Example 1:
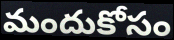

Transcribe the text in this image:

మందుకోసం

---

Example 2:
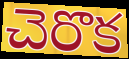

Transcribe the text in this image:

చెరొక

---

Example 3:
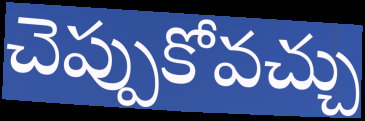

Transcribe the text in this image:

చెప్పుకోవచ్చు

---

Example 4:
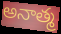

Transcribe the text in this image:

అనాత్మ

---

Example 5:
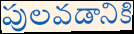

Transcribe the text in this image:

పులవడానికి